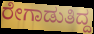
ರೇಗಾಡುತಿದ್ದ